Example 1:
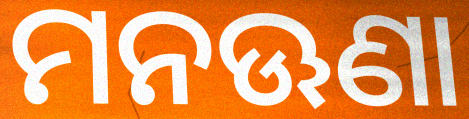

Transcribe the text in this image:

ମନଊଣା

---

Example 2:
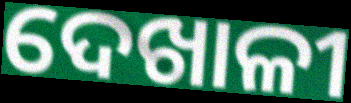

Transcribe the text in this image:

ଦେଖାଳୀ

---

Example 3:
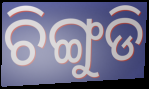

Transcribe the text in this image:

ଚିଙ୍ଗୁଡି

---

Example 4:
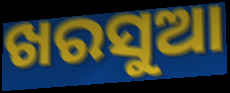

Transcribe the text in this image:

ଖରସୁଆ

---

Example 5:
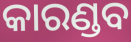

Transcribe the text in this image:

କାରଣ୍ଡବ